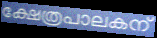
ക്ഷേത്രപാലകന്